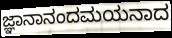
ಜ್ಞಾನಾನಂದಮಯನಾದ